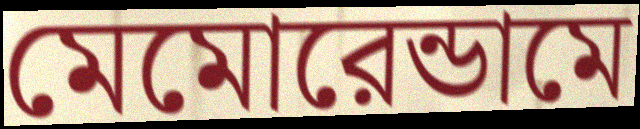
মেমোরেন্ডামে